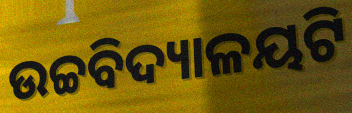
ଉଚ୍ଚବିଦ୍ୟାଳୟଟି